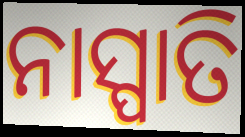
ନାସ୍ପାତି